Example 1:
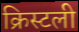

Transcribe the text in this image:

क्रिस्टली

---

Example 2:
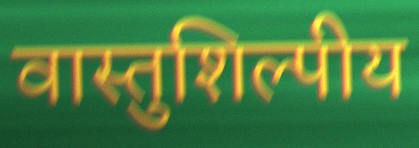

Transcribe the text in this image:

वास्तुशिल्पीय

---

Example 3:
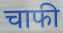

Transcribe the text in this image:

चाफी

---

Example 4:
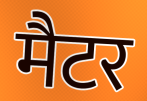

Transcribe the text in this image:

मैटर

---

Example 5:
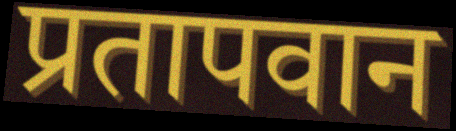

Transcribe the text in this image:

प्रतापवान